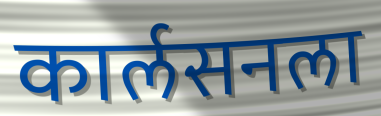
कार्लसनला